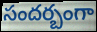
సందర్బంగా